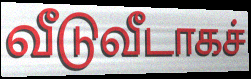
வீடுவீடாகச்